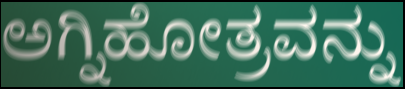
ಅಗ್ನಿಹೋತ್ರವನ್ನು